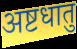
अष्टधातु